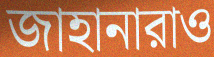
জাহানারাও